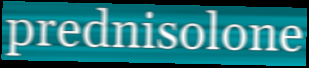
prednisolone